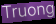
Truong